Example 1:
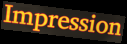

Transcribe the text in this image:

Impression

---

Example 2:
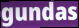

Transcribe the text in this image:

gundas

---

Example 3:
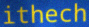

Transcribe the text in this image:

ithech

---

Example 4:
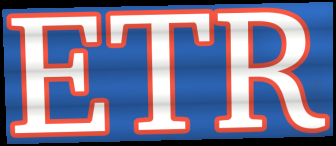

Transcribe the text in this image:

ETR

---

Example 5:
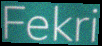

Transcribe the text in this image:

Fekri